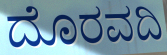
ದೊರವದಿ